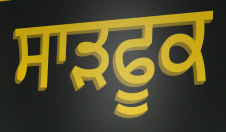
ਸਾੜਫੂਕ